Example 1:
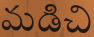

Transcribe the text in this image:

మడిచి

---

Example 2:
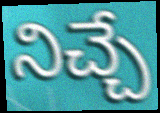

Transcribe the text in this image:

నిచ్చే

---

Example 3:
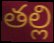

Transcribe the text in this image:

తల్లి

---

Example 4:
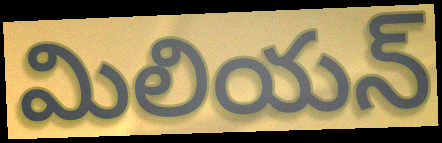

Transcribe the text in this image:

మిలియన్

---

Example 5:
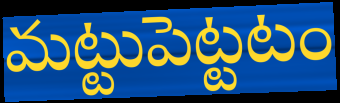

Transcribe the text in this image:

మట్టుపెట్టటం